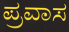
ಪ್ರವಾಸ